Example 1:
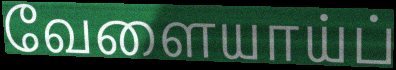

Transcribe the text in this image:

வேளையாய்ப்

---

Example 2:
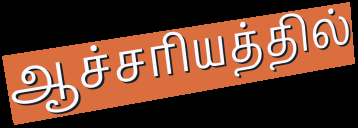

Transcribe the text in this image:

ஆச்சரியத்தில்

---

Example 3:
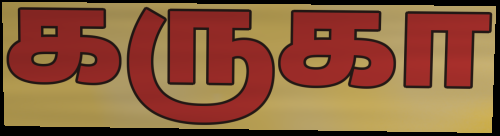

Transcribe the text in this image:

கருகா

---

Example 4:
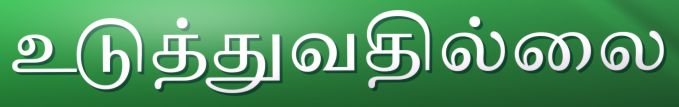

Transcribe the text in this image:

உடுத்துவதில்லை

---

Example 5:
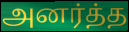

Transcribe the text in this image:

அனர்த்த